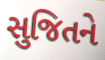
સુજિતને